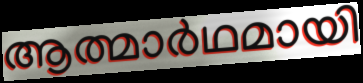
ആത്മാർഥമായി